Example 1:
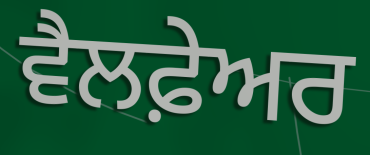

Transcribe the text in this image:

ਵੈਲਫ਼ੇਅਰ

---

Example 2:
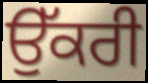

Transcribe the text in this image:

ਉੱਕਰੀ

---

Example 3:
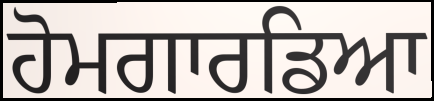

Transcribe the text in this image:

ਹੋਮਗਾਰਡਿਆ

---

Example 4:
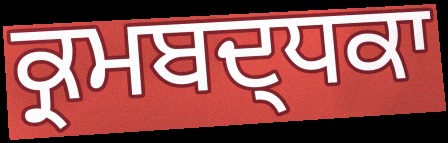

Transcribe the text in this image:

ਕ੍ਰਮਬਦ੍ਧਕਾ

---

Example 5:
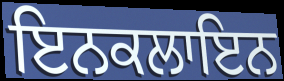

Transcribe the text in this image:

ਇਨਕਲਾਇਨ